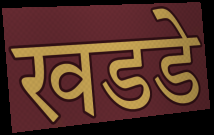
खडडे